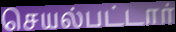
செயல்பட்டார்